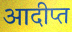
आदीप्त